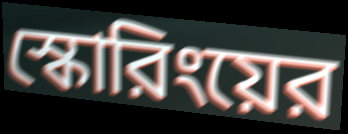
স্কোরিংয়ের